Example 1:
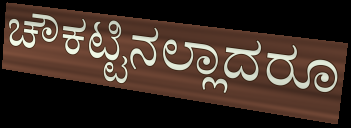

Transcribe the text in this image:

ಚೌಕಟ್ಟಿನಲ್ಲಾದರೂ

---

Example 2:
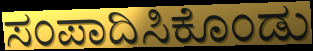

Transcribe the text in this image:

ಸಂಪಾದಿಸಿಕೊಂಡು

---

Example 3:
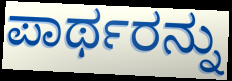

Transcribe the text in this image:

ಪಾರ್ಥರನ್ನು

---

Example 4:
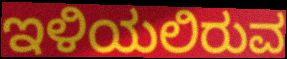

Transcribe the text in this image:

ಇಳಿಯಲಿರುವ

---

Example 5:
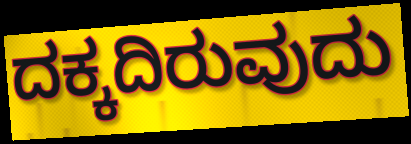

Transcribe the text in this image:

ದಕ್ಕದಿರುವುದು